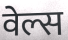
वेल्स